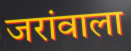
जरांवाला